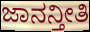
ಜಾನನ್ತೀತಿ